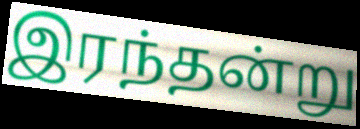
இரந்தன்று